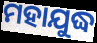
ମହାଯୁଦ୍ଧ